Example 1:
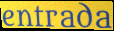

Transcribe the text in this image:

entrada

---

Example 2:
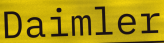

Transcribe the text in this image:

Daimler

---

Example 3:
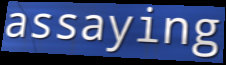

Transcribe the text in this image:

assaying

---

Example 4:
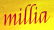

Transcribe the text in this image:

millia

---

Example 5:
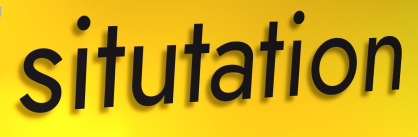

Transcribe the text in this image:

situtation